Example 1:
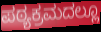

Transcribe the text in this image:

ಪಠ್ಯಕ್ರಮದಲ್ಲೂ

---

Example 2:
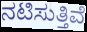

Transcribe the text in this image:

ನಟಿಸುತ್ತಿವೆ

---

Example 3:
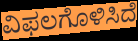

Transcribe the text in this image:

ವಿಫಲಗೊಳಿಸಿದೆ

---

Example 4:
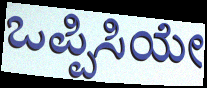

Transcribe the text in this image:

ಒಪ್ಪಿಸಿಯೇ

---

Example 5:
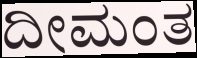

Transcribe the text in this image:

ದೀಮಂತ